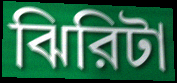
ঝিরিটা